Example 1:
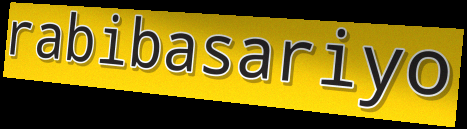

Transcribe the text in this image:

rabibasariyo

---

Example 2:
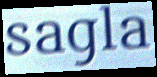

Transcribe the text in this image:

sagla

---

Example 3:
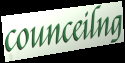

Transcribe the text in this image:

counceilng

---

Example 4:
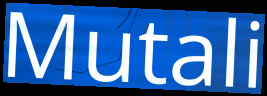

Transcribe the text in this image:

Mutali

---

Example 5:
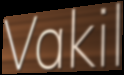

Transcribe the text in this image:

Vakil